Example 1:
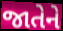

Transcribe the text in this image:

જાતેને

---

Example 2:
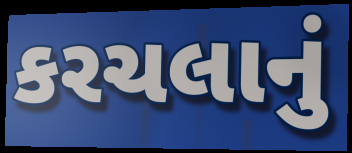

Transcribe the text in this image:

કરચલાનું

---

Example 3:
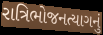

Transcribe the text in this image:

રાત્રિભોજનત્યાગનું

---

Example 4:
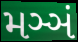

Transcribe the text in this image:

મઞ્ઞં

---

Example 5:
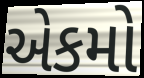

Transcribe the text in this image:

એકમો